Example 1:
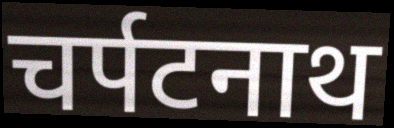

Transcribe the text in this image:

चर्पटनाथ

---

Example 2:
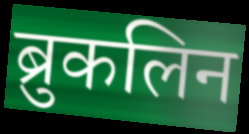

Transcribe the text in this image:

ब्रुकलिन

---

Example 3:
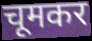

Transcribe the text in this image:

चूमकर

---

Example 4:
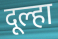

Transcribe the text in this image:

दूल्हा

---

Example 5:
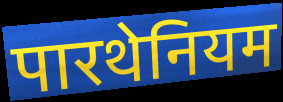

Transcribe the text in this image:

पारथेनियम